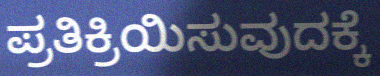
ಪ್ರತಿಕ್ರಿಯಿಸುವುದಕ್ಕೆ